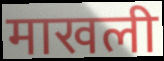
माखली